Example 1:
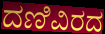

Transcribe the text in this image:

ದಣಿವಿರದ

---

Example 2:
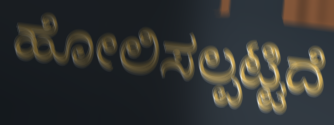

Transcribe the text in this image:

ಹೋಲಿಸಲ್ಪಟ್ಟಿದೆ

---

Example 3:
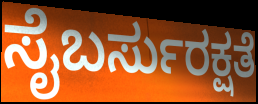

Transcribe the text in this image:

ಸೈಬರ್ಸುರಕ್ಷತೆ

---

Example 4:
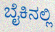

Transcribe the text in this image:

ಬೈಕಿನಲ್ಲಿ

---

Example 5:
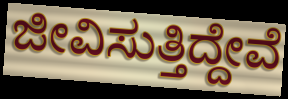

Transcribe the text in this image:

ಜೀವಿಸುತ್ತಿದ್ದೇವೆ